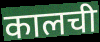
कालची